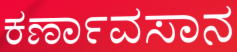
ಕರ್ಣಾವಸಾನ